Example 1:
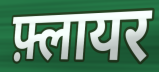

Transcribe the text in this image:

फ़्लायर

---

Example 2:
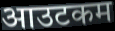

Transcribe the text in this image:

आउटकम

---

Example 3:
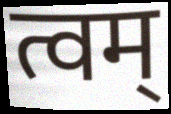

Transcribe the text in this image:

त्वम्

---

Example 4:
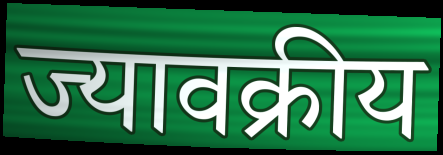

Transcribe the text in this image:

ज्यावक्रीय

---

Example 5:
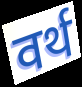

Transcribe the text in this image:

वर्थ